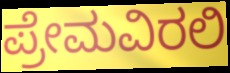
ಪ್ರೇಮವಿರಲಿ